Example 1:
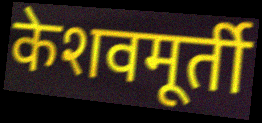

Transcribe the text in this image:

केशवमूर्ती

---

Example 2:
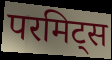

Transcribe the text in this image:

परमिट्स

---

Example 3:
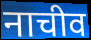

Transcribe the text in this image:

नाचीव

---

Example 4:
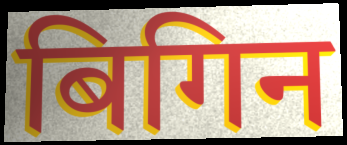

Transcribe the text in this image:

बिगिन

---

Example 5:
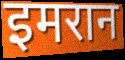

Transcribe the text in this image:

इमरान